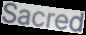
Sacred